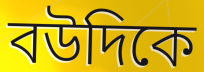
বউদিকে